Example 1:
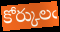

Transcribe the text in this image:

కోర్కులఁ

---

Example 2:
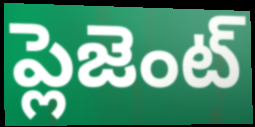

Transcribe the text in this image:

ప్లెజెంట్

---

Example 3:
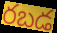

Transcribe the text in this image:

రబడ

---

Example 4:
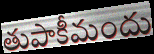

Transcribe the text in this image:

తుపాకీమందు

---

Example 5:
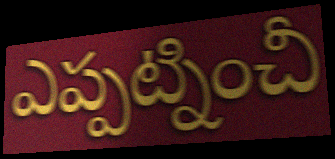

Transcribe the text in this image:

ఎప్పట్నించీ